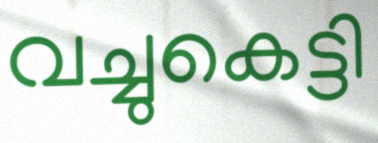
വച്ചുകെട്ടി